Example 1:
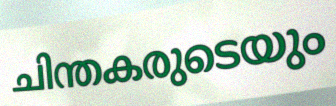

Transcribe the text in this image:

ചിന്തകരുടെയും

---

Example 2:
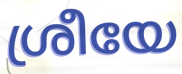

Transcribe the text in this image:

ശ്രീയേ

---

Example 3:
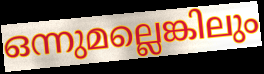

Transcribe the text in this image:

ഒന്നുമല്ലെങ്കിലും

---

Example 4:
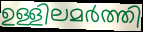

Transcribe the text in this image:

ഉള്ളിലമർത്തി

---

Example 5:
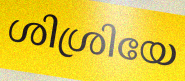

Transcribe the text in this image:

ശിശ്രിയേ